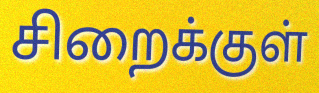
சிறைக்குள்